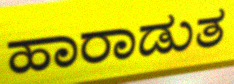
ಹಾರಾಡುತ